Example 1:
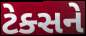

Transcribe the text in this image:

ટેક્સને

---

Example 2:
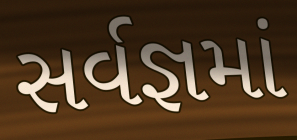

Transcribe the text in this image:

સર્વજ્ઞમાં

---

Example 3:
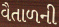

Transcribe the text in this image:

વૈતાળની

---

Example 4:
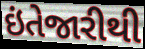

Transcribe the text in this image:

ઇંતેજારીથી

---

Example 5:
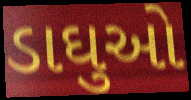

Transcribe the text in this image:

ડાઘુઓ